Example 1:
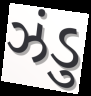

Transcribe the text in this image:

ઝંડુ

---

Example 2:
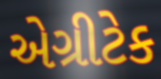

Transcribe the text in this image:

એગ્રીટેક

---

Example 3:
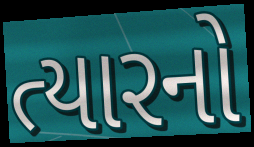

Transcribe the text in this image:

ત્યારનો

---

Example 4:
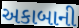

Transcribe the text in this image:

અકાબાની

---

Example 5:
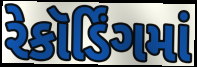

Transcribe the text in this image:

રેકૉર્ડિંગમાં